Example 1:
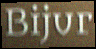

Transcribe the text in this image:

Bijur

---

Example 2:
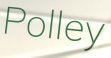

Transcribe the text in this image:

Polley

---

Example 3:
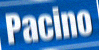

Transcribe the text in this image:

Pacino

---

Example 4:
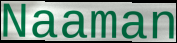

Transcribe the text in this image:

Naaman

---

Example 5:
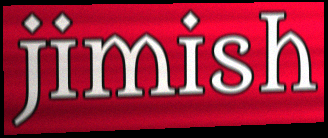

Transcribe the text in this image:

jimish